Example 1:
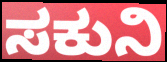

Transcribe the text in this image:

ಸಕುನಿ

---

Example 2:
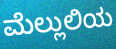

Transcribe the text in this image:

ಮೆಲ್ಲುಲಿಯ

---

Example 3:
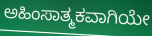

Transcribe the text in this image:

ಅಹಿಂಸಾತ್ಮಕವಾಗಿಯೇ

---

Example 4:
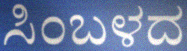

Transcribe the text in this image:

ಸಿಂಬಳದ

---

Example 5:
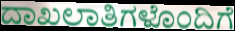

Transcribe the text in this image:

ದಾಖಲಾತಿಗಳೊಂದಿಗೆ